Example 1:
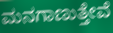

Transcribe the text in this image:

ಮನಗಾಣುತ್ತೇವೆ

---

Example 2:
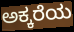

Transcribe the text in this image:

ಅಕ್ಕರೆಯ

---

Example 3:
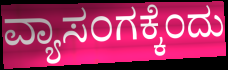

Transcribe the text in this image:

ವ್ಯಾಸಂಗಕ್ಕೆಂದು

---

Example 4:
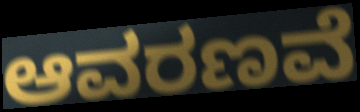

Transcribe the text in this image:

ಆವರಣವೆ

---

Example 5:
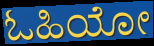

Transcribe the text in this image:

ಓಹಿಯೋ